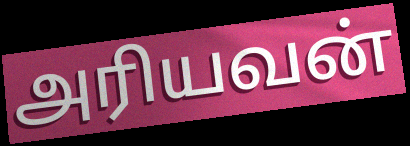
அரியவன்